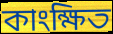
কাংক্ষিত